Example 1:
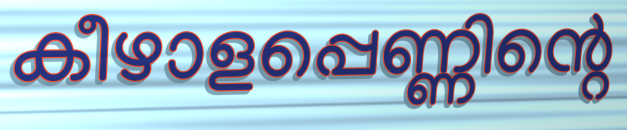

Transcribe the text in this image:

കീഴാളപ്പെണ്ണിന്റെ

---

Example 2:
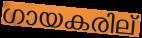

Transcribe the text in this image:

ഗായകരില്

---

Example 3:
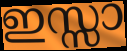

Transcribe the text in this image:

ഇസ്സാ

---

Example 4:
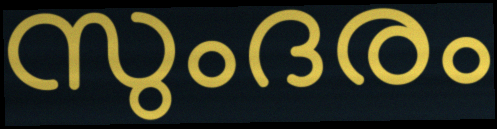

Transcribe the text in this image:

സുംദരം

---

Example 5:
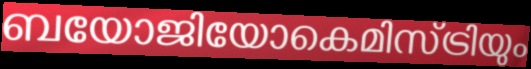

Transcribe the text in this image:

ബയോജിയോകെമിസ്ട്രിയും